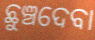
ଛୁଞ୍ଚଦେବା